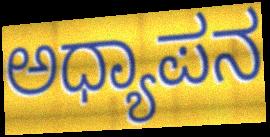
ಅಧ್ಯಾಪನ